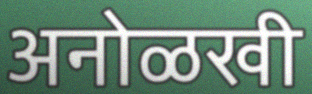
अनोळखी